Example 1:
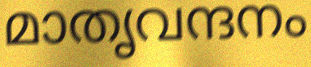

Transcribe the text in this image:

മാതൃവന്ദനം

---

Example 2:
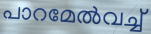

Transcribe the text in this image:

പാറമേൽവച്ച്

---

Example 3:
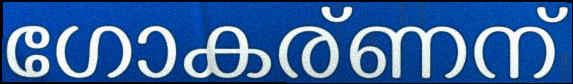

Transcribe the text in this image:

ഗോകര്ണന്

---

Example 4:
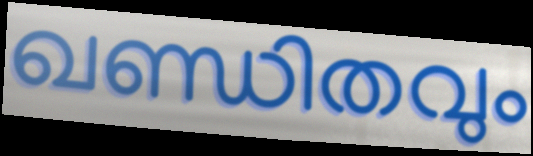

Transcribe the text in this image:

ഖണ്ഡിതവും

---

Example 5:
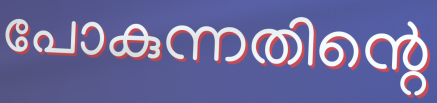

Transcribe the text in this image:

പോകുന്നതിന്റെ